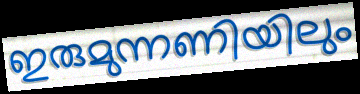
ഇരുമുന്നണിയിലും